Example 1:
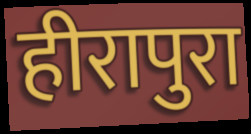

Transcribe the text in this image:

हीरापुरा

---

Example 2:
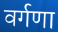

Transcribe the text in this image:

वर्गणा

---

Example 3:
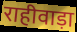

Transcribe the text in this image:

राहीवाड़ा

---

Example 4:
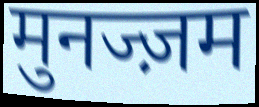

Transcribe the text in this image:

मुनज्ज़म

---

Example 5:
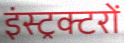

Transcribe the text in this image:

इंस्ट्रक्टरों